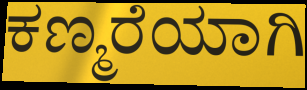
ಕಣ್ಮರೆಯಾಗಿ